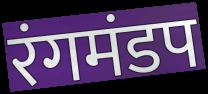
रंगमंडप